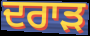
ਦਰਾੜ